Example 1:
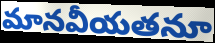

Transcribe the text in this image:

మానవీయతనూ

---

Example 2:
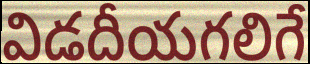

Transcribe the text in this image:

విడదీయగలిగే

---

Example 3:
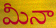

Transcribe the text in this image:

మీనా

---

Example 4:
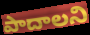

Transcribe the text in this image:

పాదాలని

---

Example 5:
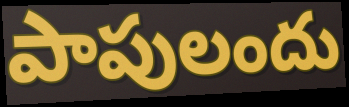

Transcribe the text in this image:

పాపులందు